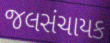
જલસંચાયક